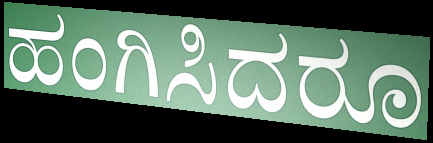
ಹಂಗಿಸಿದರೂ